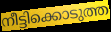
നീട്ടിക്കൊടുത്ത